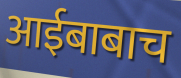
आईबाबाच